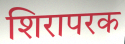
शिरापरक